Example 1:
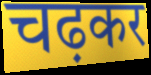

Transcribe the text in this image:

चढ़कर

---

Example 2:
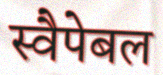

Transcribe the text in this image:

स्वैपेबल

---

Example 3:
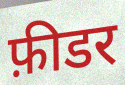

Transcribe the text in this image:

फ़ीडर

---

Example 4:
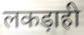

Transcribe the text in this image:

लकड़ाही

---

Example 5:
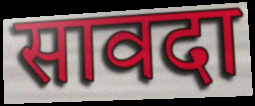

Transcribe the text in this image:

सावदा